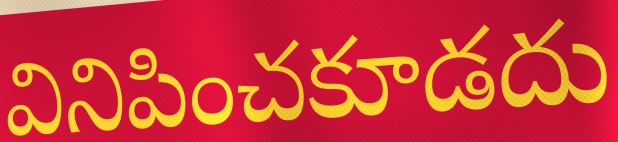
వినిపించకూడదు